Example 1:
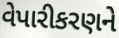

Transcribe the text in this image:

વેપારીકરણને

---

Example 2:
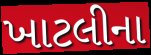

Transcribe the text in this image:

ખાટલીના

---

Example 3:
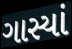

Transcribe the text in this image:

ગાસ્યાં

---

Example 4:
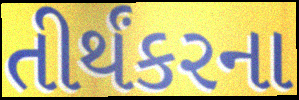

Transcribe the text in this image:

તીર્થંકરના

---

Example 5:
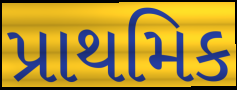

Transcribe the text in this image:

પ્રાથમિક